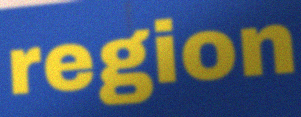
region